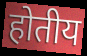
होतीय